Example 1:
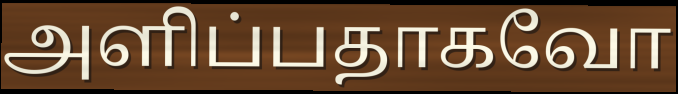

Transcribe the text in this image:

அளிப்பதாகவோ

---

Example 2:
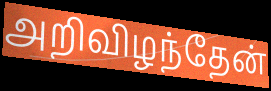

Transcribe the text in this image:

அறிவிழந்தேன்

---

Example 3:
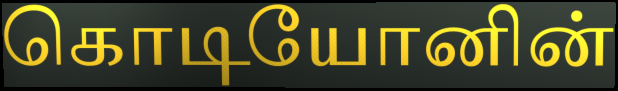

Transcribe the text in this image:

கொடியோனின்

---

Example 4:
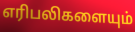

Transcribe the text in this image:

எரிபலிகளையும்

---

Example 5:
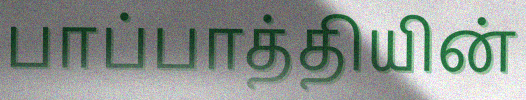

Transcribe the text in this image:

பாப்பாத்தியின்